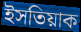
ইসতিয়াক